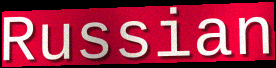
Russian